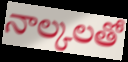
నాల్కలతో